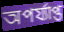
অপৰ্য্যাপ্ত